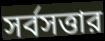
সর্বসত্তার